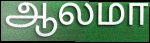
ஆலமா